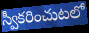
స్వీకరించుటలో